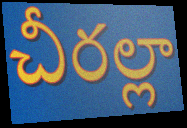
చీరల్లా